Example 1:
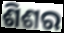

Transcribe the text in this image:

ଶିଶର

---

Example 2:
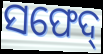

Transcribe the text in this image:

ସଫେଦ୍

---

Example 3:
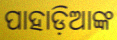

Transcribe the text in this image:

ପାହାଡ଼ିଆଙ୍କ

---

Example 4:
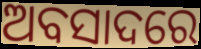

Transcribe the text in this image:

ଅବସାଦରେ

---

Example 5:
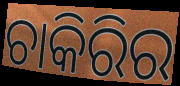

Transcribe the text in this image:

ଚାକିରିର